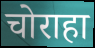
चोराहा